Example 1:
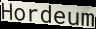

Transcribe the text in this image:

Hordeum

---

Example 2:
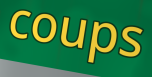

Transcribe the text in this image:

coups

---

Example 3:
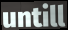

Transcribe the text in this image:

untill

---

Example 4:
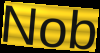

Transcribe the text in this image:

Nob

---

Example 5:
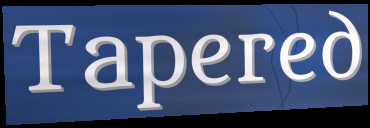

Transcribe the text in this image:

Tapered